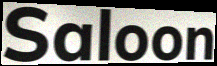
Saloon